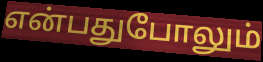
என்பதுபோலும்